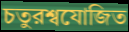
চতুরশ্বযোজিত